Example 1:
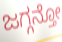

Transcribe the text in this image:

ಜಗ್ಗನ್ತೋ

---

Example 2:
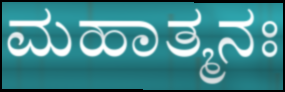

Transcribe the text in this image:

ಮಹಾತ್ಮನಃ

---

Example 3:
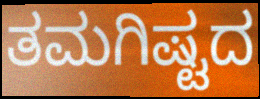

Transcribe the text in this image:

ತಮಗಿಷ್ಟದ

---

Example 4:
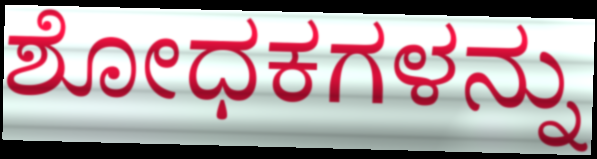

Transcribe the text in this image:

ಶೋಧಕಗಳನ್ನು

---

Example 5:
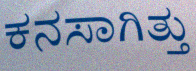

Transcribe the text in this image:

ಕನಸಾಗಿತ್ತು